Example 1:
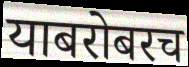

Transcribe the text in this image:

याबरोबरच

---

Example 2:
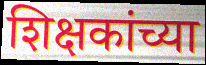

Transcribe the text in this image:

शिक्षकांच्या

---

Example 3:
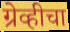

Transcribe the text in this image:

ग्रेव्हीचा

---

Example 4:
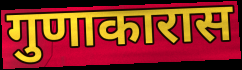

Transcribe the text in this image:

गुणाकारास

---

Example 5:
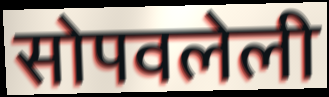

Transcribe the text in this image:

सोपवलेली